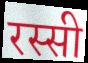
रस्सी